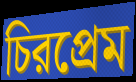
চিরপ্রেম